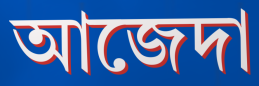
আজেদা